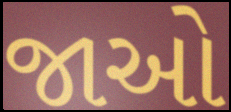
જાઓ